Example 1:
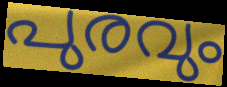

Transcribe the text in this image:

പുരവും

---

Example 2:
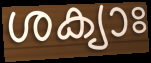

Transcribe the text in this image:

ശക്യാഃ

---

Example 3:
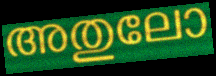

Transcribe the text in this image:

അതുലോ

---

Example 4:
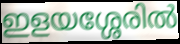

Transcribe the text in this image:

ഇളയശ്ശേരിൽ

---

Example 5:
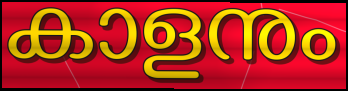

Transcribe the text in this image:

കാളനും